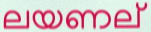
ലയണല്